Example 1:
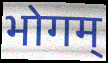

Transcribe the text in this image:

भोगम्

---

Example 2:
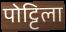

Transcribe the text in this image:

पोट्टिला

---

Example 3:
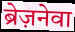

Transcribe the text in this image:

ब्रेज़नेवा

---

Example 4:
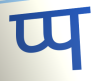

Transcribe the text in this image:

प्प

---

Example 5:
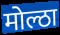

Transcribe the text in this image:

मोल्ठा